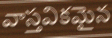
వాస్తవికమైన